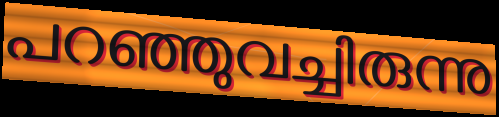
പറഞ്ഞുവച്ചിരുന്നു